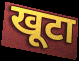
खूटा